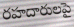
రహదారులపై